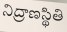
నిద్రాణస్థితి